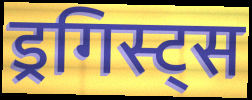
ड्रगिस्ट्स